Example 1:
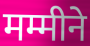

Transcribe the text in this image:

मम्मीने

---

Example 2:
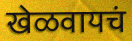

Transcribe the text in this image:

खेळवायचं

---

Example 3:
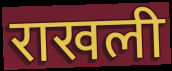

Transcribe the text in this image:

राखली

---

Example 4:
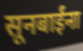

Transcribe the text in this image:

सूनबाईंना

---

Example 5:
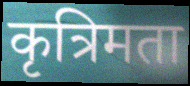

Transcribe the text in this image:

कृत्रिमता